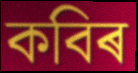
কবিৰ